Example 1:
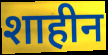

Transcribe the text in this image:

शाहीन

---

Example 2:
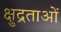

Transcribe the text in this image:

क्षुद्रताओं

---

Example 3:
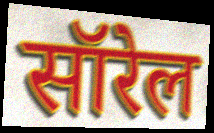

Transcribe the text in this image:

सॉरेल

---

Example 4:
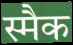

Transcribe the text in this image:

स्मैक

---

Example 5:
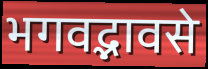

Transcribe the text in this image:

भगवद्भावसे